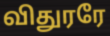
விதுரரே